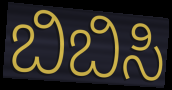
ಬಿಬಿಸಿ